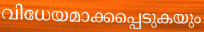
വിധേയമാക്കപ്പെടുകയും